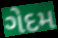
ગેદમ